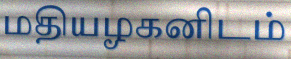
மதியழகனிடம்